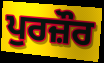
ਪੁਰਜ਼ੌਰ